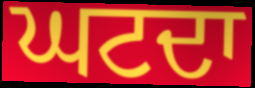
ਘਟਦਾ